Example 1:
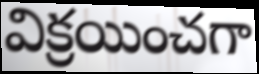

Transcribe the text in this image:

విక్రయించగా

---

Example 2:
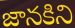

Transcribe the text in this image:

జానకిని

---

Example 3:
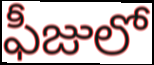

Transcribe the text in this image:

ఫీజులో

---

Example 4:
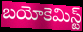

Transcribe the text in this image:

బయోకెమిస్ట్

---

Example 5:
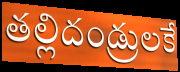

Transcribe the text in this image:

తల్లిదండ్రులకే